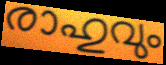
രാഹുവും